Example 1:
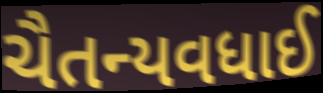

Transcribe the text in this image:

ચૈતન્યવધાઈ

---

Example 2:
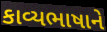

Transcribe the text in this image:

કાવ્યભાષાને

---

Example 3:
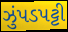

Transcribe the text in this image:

ઝુંપડપટ્ટી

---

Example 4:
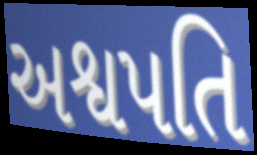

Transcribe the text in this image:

અશ્વપતિ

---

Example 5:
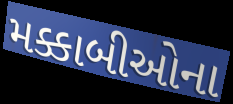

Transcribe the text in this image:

મક્કાબીઓના